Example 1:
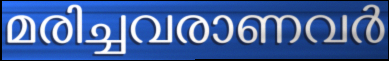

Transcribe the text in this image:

മരിച്ചവരാണവർ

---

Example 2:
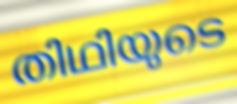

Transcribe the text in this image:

തിഥിയുടെ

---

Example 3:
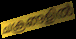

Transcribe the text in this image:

ചക്രങ്ങളിൽ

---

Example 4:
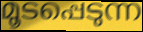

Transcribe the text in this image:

മൂടപ്പെടുന്ന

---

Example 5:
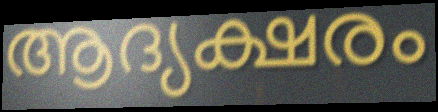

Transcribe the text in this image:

ആദ്യക്ഷരം